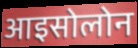
आइसोलोन